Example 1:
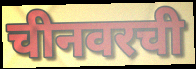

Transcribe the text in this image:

चीनवरची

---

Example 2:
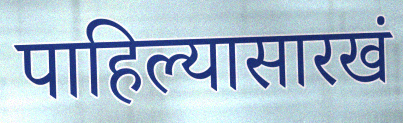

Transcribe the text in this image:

पाहिल्यासारखं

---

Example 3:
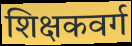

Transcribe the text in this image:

शिक्षकवर्ग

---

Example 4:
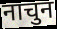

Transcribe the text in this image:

नाचुन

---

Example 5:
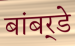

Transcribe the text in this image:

बांबर्डे